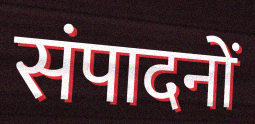
संपादनों